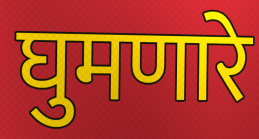
घुमणारे